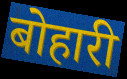
बोहारी